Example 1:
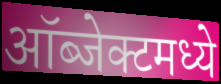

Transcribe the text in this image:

ऑब्जेक्टमध्ये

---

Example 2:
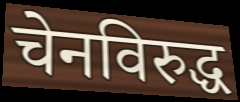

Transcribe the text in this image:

चेनविरुद्ध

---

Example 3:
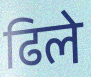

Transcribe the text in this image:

ढिले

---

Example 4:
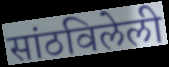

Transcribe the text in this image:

सांठविलेली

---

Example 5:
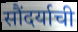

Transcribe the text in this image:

सौंदर्याची